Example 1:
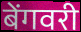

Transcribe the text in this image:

बेंगवरी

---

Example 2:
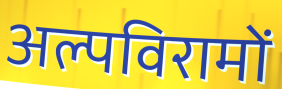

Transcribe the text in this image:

अल्पविरामों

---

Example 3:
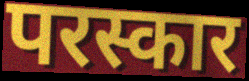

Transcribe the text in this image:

परस्कार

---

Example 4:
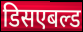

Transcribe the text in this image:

डिसएबल्ड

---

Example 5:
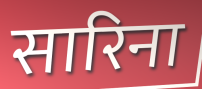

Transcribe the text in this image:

सारिना